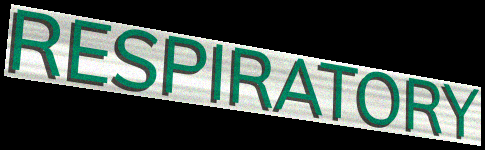
RESPIRATORY